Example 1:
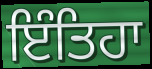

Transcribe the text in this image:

ਇੰਤਿਹਾ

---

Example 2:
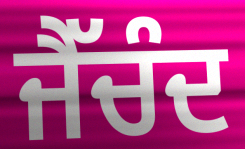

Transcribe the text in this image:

ਜੈੱਚੰਦ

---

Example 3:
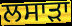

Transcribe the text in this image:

ਲਸਾੜਾ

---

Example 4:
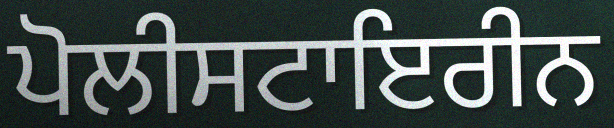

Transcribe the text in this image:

ਪੋਲੀਸਟਾਇਰੀਨ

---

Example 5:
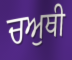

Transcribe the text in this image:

ਚਅੁਥੀ